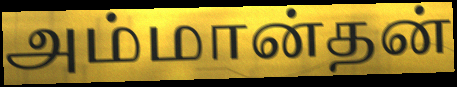
அம்மான்தன்